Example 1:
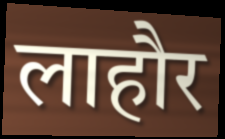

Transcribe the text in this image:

लाहौर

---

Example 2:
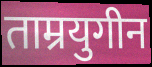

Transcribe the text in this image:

ताम्रयुगीन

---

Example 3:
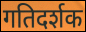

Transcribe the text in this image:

गतिदर्शक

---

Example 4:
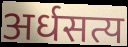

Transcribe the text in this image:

अर्धसत्य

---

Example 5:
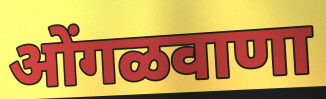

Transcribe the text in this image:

ओंगळवाणा